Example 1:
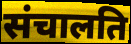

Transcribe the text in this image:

संचालति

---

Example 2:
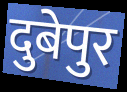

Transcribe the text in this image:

दुबेपुर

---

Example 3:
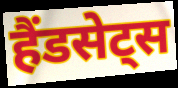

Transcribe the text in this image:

हैंडसेट्स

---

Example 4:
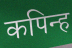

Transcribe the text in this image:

कपिन्ह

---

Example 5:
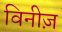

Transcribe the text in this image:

विनीज़